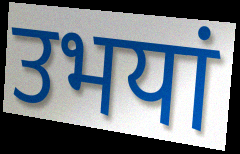
उभयां